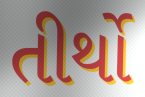
તીર્થો